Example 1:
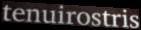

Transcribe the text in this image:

tenuirostris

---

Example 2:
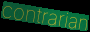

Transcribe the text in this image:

contrarian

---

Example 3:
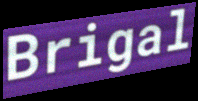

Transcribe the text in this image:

Brigal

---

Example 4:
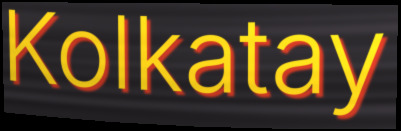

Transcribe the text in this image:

Kolkatay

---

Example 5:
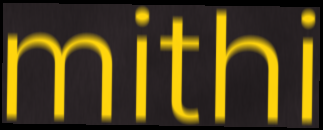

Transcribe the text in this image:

mithi